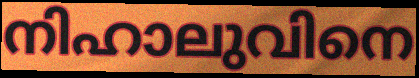
നിഹാലുവിനെ